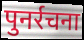
पुनर्रचना